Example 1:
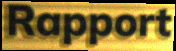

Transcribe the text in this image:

Rapport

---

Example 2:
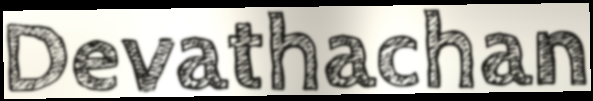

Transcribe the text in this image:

Devathachan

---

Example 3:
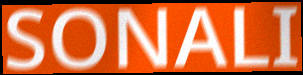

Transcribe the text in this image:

SONALI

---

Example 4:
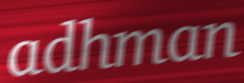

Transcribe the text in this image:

adhman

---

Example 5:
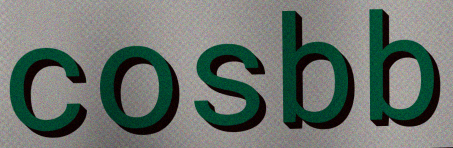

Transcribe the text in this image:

cosbb